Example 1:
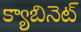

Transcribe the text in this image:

క్యాబినెట్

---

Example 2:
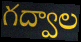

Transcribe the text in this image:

గద్వాల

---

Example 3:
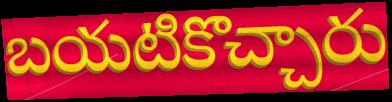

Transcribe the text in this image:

బయటికొచ్చారు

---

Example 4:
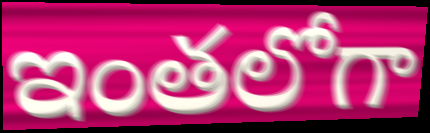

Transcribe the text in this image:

ఇంతలోగా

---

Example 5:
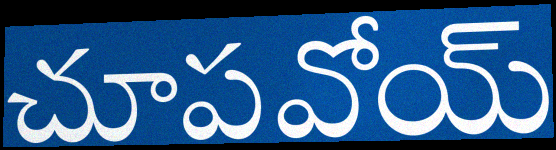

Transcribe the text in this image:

చూపవోయ్